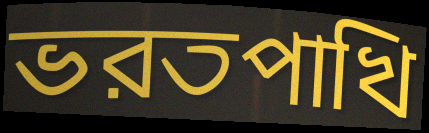
ভরতপাখি